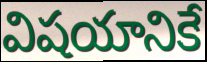
విషయానికే